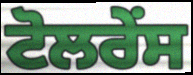
ਟੋਲਰੇਂਸ